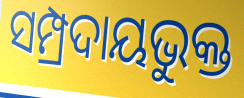
ସମ୍ପ୍ରଦାୟଭୁକ୍ତ